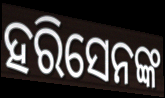
ହରିସେନଙ୍କ